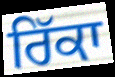
ਰਿੱਕਾ